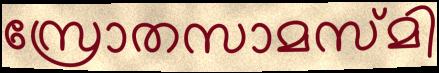
സ്രോതസാമസ്മി